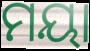
ମୟା